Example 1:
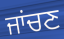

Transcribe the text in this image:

ਜਾਂਚਣ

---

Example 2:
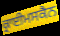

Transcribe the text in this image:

ਕ੍ਰਾਈਮਸਕੈਨ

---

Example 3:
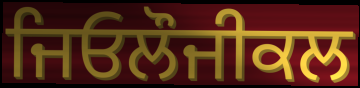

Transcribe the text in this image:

ਜਿਓਲੌਜੀਕਲ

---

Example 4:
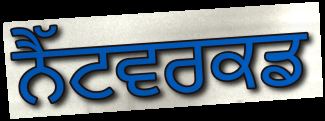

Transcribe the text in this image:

ਨੈੱਟਵਰਕਡ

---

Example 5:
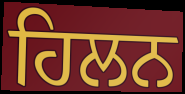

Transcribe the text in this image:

ਹਿਲਨ